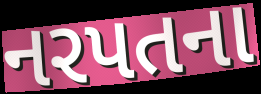
નરપતના